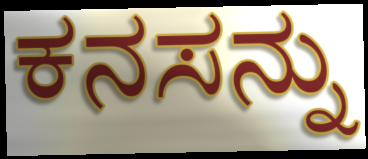
ಕನಸನ್ನು